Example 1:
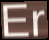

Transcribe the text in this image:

Er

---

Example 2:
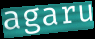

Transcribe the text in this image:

agaru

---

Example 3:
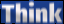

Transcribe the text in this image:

Think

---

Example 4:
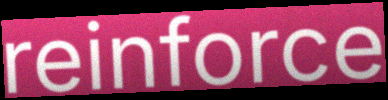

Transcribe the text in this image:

reinforce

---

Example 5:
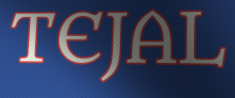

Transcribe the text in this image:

TEJAL